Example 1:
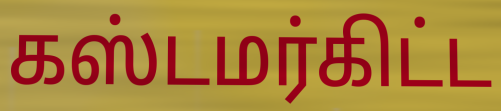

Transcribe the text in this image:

கஸ்டமர்கிட்ட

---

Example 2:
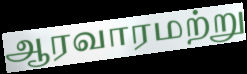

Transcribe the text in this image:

ஆரவாரமற்று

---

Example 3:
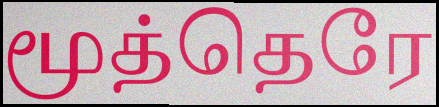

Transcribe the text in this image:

மூத்தெரே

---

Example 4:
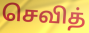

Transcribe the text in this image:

செவித்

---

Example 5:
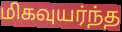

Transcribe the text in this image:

மிகவுயர்ந்த